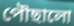
পৌছালো